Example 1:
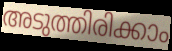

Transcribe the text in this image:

അടുത്തിരിക്കാം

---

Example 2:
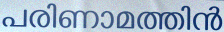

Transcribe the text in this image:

പരിണാമത്തിൻ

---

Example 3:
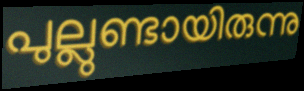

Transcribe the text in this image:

പുല്ലുണ്ടായിരുന്നു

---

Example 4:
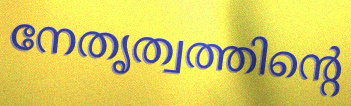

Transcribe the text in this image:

നേതൃത്വത്തിന്റെ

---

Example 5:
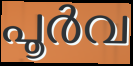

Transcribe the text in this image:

പൂർവ